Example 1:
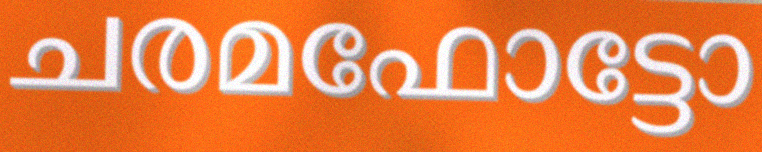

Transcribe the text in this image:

ചരമഫോട്ടോ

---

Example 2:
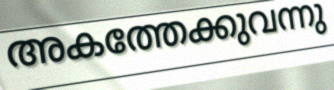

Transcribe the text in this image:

അകത്തേക്കുവന്നു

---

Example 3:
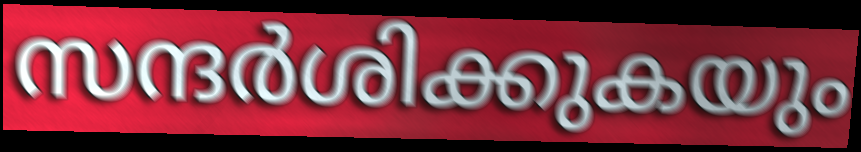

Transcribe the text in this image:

സന്ദർശിക്കുകയും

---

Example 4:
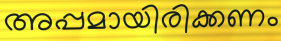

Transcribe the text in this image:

അപ്പമായിരിക്കണം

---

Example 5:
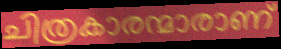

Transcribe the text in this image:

ചിത്രകാരന്മാരാണ്